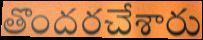
తొందరచేశారు